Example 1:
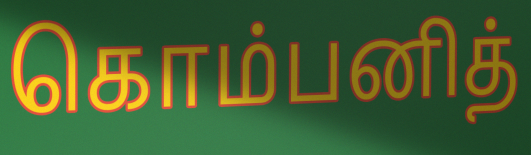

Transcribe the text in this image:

கொம்பனித்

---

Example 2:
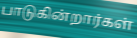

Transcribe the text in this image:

பாடுகின்றார்கள்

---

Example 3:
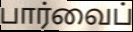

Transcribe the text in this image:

பார்வைப்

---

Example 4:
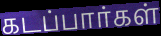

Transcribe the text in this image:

கடப்பார்கள்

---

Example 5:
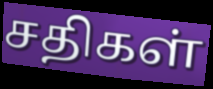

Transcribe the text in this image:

சதிகள்